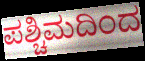
ಪಶ್ಚಿಮದಿಂದ